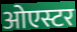
ओएस्टर